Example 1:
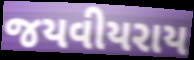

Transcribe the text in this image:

જયવીયરાય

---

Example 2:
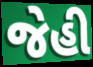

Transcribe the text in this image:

જેહી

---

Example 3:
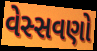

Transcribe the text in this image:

વેસ્સવણો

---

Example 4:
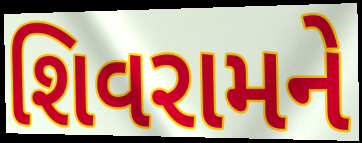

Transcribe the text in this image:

શિવરામને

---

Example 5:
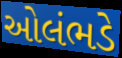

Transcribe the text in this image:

ઓલંભડે